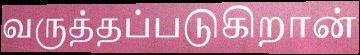
வருத்தப்படுகிறான்